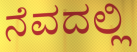
ನೆವದಲ್ಲಿ